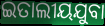
ଇତାଲୀୟଯୁବା